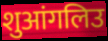
शुआंगलिउ